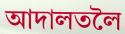
আদালতলৈ